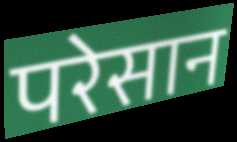
परेसान